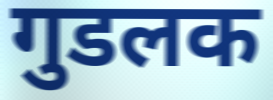
गुडलक